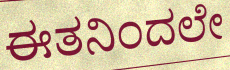
ಈತನಿಂದಲೇ